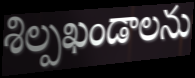
శిల్పఖండాలను